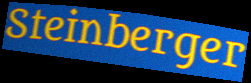
Steinberger